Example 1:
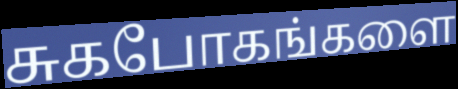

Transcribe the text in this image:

சுகபோகங்களை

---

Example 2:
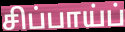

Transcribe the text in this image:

சிப்பாய்ப்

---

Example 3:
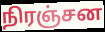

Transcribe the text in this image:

நிரஞ்சன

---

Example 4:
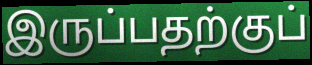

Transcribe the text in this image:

இருப்பதற்குப்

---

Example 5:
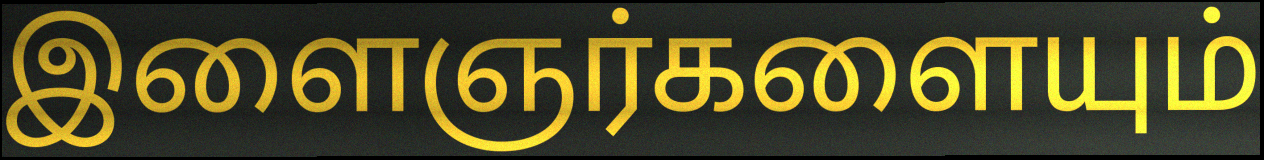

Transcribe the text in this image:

இளைஞர்களையும்